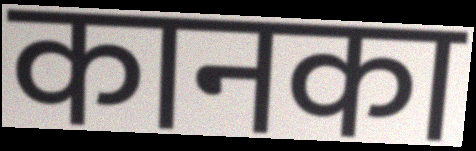
कानका